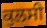
ਕੁਲਸੀ